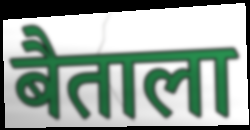
बैताला